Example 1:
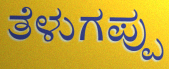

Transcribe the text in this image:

ತೆಳುಗಪ್ಪು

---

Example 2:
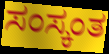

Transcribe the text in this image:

ಸಂಸ್ಕಂತ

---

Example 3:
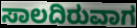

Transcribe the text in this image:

ಸಾಲದಿರುವಾಗ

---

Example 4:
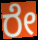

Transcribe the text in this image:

ರೇ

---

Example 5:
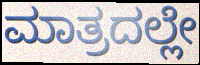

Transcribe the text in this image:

ಮಾತ್ರದಲ್ಲೇ